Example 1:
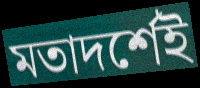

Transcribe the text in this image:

মতাদর্শেই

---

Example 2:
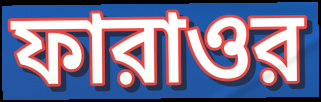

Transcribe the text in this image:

ফারাওর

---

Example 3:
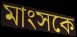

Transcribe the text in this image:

মাংসকে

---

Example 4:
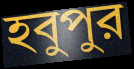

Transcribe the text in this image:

হবুপুর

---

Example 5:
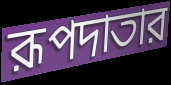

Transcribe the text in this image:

রূপদাতার